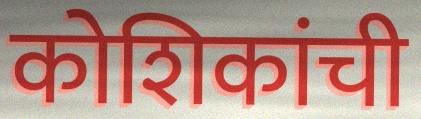
कोशिकांची